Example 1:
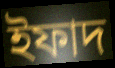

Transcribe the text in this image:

ইফাদ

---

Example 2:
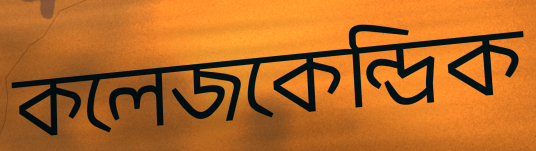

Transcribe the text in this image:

কলেজকেন্দ্রিক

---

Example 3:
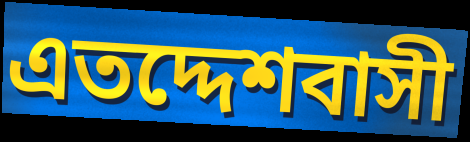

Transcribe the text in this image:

এতদ্দেশবাসী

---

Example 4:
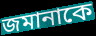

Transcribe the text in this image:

জমানাকে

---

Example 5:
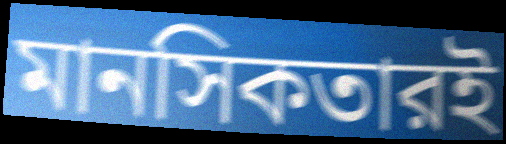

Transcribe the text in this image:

মানসিকতারই